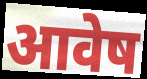
आवेष